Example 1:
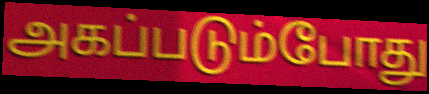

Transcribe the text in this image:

அகப்படும்போது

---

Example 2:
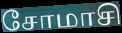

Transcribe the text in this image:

சோமாசி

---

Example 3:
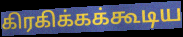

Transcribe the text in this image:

கிரகிக்கக்கூடிய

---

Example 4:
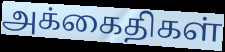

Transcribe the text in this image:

அக்கைதிகள்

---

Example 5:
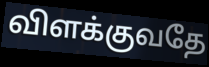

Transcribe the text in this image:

விளக்குவதே